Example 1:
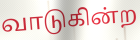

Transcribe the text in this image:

வாடுகின்ற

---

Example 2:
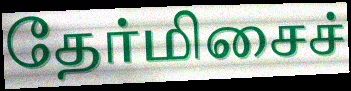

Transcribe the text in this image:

தேர்மிசைச்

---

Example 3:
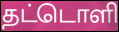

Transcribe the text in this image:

தட்டொளி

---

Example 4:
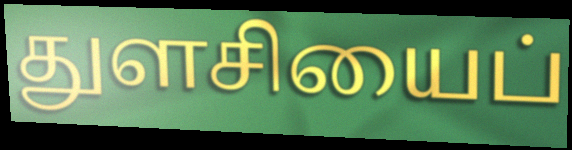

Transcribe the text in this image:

துளசியைப்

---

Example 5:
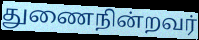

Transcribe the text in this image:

துணைநின்றவர்